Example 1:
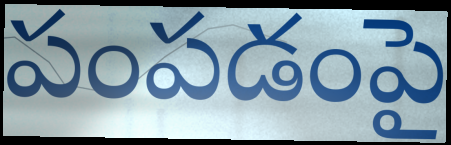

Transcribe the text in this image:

పంపడంపై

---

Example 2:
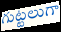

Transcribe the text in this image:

గుట్టలుగా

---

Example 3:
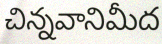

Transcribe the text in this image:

చిన్నవానిమీద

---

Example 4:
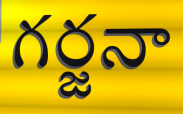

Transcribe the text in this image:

గర్జనా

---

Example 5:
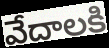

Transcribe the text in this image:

వేదాలకి